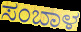
ಸಂಬಾಳ